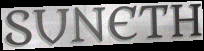
SUNETH